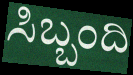
ಸಿಬ್ಬಂದಿ